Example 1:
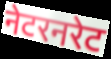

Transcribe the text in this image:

नेटरनरेट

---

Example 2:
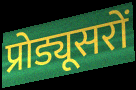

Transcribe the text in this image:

प्रोड्यूसरों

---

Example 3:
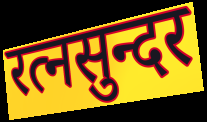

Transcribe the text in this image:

रत्नसुन्दर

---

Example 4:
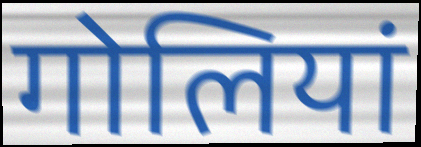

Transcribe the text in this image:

गोलियां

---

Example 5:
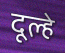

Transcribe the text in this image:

दूल्हे